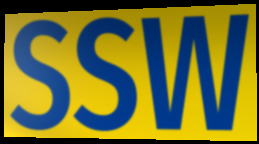
SSW